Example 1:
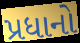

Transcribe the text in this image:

પ્રધાનો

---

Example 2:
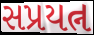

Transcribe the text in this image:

સપ્રયત્ન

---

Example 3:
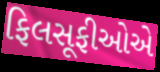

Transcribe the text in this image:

ફિલસૂફીઓએ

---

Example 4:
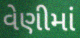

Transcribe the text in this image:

વેણીમાં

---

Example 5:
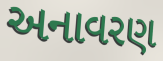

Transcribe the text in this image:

અનાવરણ